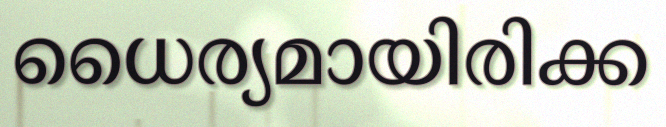
ധൈര്യമായിരിക്ക